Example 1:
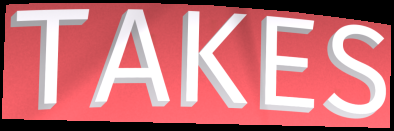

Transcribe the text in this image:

TAKES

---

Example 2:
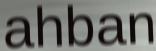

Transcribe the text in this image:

ahban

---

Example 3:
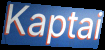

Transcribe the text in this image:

Kaptai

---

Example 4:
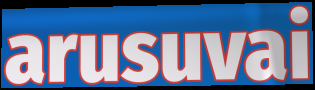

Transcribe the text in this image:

arusuvai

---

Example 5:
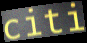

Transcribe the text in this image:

citi